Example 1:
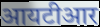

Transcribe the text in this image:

आयटीआर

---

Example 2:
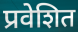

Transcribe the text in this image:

प्रवेशित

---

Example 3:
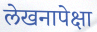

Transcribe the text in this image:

लेखनापेक्षा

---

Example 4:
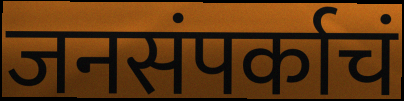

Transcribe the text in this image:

जनसंपर्काचं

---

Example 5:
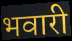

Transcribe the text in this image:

भवारी